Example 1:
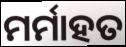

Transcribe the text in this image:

ମର୍ମାହତ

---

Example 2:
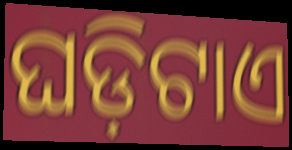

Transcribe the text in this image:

ଘଡ଼ିଟାଏ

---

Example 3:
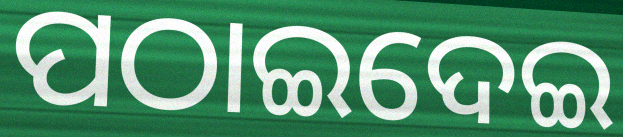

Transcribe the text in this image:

ପଠାଇଦେଇ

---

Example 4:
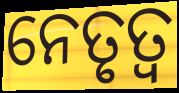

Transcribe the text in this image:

ନେତୃତ୍ଵ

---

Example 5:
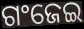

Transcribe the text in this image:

ଗଂଜେଇ